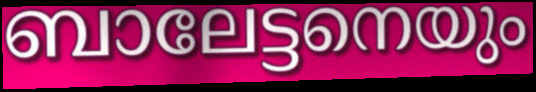
ബാലേട്ടനെയും